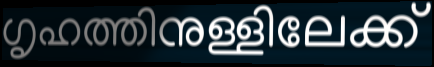
ഗൃഹത്തിനുള്ളിലേക്ക്